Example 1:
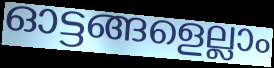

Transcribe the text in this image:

ഓട്ടങ്ങളെല്ലാം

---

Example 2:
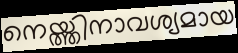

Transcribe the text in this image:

നെയ്ത്തിനാവശ്യമായ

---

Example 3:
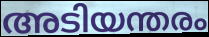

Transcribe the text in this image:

അടിയന്തരം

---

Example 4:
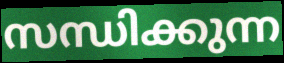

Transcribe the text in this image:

സന്ധിക്കുന്ന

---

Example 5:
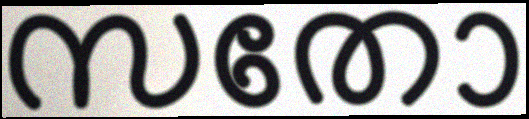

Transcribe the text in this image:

സതോ